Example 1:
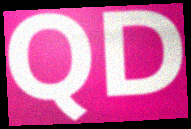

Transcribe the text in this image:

QD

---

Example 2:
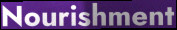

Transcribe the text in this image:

Nourishment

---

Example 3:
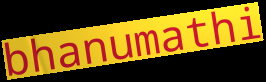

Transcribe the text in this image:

bhanumathi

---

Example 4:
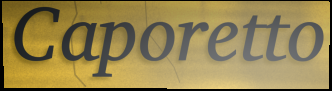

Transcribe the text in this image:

Caporetto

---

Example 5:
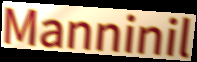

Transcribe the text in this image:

Manninil